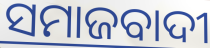
ସମାଜବାଦୀ